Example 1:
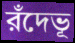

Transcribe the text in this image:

রঁদেভূ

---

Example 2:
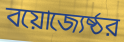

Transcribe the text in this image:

বয়োজ্যেষ্ঠর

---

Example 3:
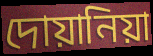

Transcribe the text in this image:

দোয়ানিয়া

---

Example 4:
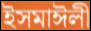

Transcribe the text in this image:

ইসমাঈলী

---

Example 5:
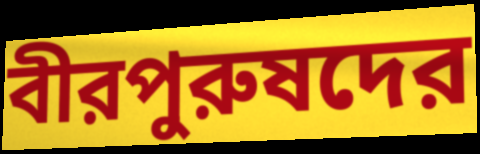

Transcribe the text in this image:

বীরপুরুষদের